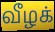
வீழக்